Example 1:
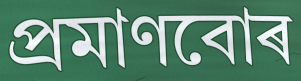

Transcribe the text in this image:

প্ৰমাণবোৰ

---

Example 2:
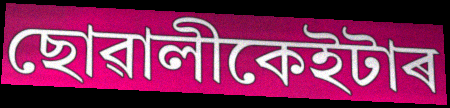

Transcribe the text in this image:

ছোৱালীকেইটাৰ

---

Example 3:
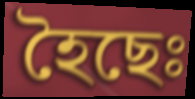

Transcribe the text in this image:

হৈছেঃ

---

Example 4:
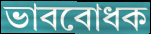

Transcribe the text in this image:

ভাববোধক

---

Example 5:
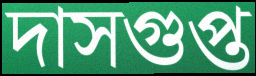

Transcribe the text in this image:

দাসগুপ্ত